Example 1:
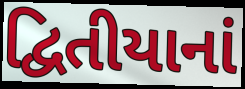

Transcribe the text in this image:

દ્વિતીયાનાં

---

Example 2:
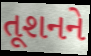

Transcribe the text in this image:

તૂશનને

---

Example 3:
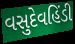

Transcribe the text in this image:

વસુદેવહિંડી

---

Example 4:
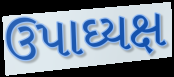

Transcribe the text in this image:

ઉપાઘ્યક્ષ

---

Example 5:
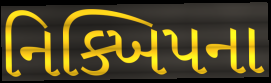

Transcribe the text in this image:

નિક્ખિપના